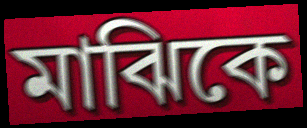
মাঝিকে